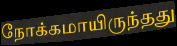
நோக்கமாயிருந்தது